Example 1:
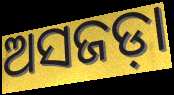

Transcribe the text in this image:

ଅସଜଡ଼ା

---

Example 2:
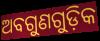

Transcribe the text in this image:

ଅବଗୁଣଗୁଡ଼ିକ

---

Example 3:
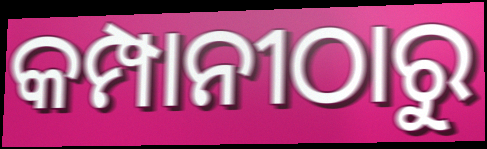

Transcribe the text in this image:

କମ୍ପାନୀଠାରୁ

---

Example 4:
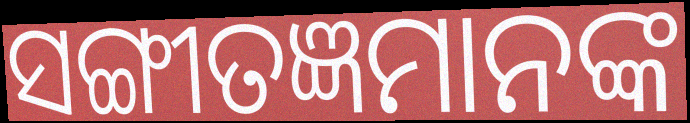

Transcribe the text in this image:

ସଙ୍ଗୀତଜ୍ଞମାନଙ୍କ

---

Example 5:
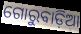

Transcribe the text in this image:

ଗୋରୁବାଡ଼ିଆ